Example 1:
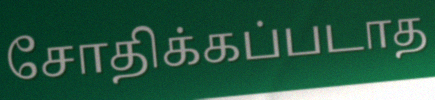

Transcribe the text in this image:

சோதிக்கப்படாத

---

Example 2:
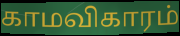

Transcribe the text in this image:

காமவிகாரம்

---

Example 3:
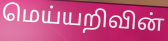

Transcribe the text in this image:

மெய்யறிவின்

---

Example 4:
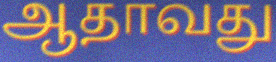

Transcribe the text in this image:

ஆதாவது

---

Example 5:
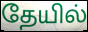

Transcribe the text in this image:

தேயில்